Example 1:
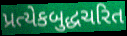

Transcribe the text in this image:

પ્રત્યેકબુદ્ધચરિત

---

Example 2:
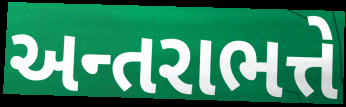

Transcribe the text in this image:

અન્તરાભત્તે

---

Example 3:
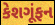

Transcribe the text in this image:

કેશગૂંફન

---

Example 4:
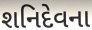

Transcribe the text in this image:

શનિદેવના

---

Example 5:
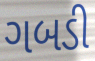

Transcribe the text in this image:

ગબડી